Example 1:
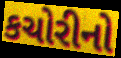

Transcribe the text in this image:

કચોરીનો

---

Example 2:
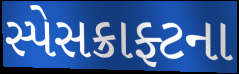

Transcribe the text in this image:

સ્પેસક્રાફ્ટના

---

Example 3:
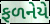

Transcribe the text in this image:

ફળનેયે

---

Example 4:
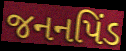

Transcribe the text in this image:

જનનપિંડ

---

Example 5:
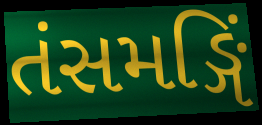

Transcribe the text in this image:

તંસમઙ્ગિં